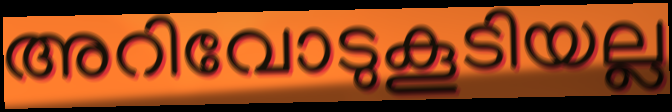
അറിവോടുകൂടിയല്ല